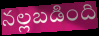
నల్లబడింది